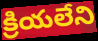
క్రియలేని